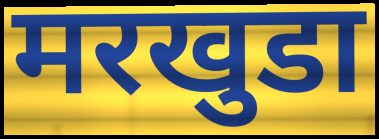
मरखुडा